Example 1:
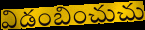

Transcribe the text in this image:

విడంబించుచు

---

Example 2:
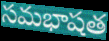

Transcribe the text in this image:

సమభాషత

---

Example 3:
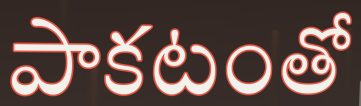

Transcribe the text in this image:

పాకటంతో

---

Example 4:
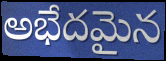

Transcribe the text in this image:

అభేదమైన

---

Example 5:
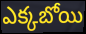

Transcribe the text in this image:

ఎక్కబోయి